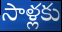
సాళ్లకు